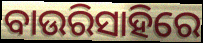
ବାଉରିସାହିରେ